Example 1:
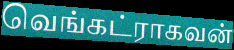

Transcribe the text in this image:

வெங்கட்ராகவன்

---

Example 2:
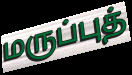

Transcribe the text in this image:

மருப்புத்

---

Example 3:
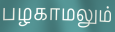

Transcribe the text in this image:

பழகாமலும்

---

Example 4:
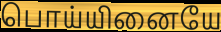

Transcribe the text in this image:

பொய்யினையே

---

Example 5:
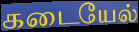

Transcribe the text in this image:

கடையேல்